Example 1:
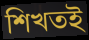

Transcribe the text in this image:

শিখতই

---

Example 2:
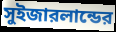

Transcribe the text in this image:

সুইজারলান্ডের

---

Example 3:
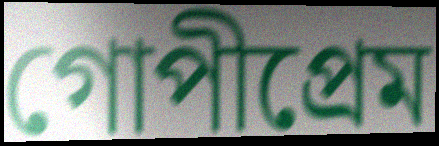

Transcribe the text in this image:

গোপীপ্রেম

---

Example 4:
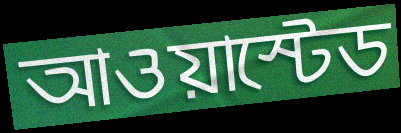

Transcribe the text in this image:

আওয়াস্টেড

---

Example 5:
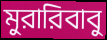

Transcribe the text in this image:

মুরারিবাবু